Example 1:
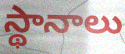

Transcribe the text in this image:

స్థానాలు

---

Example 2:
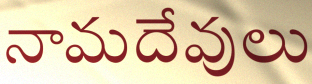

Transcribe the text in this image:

నామదేవులు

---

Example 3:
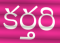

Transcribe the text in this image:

కర్తరి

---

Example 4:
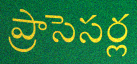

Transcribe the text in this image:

ప్రాసెసర్ల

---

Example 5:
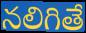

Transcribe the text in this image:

నలిగితే